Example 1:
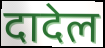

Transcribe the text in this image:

दादेल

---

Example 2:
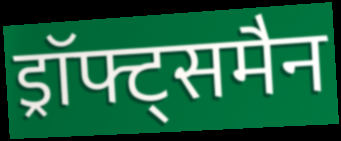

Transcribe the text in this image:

ड्रॉफ्ट्समैन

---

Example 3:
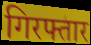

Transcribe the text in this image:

गिरफ्तार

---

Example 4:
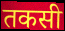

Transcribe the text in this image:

तकसी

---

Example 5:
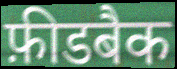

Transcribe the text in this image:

फ़ीडबैक